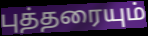
புத்தரையும்